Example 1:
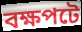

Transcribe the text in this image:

বক্ষপটে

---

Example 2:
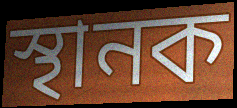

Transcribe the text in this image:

স্থানক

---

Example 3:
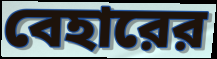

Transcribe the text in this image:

বেহারের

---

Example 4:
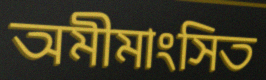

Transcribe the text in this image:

অমীমাংসিত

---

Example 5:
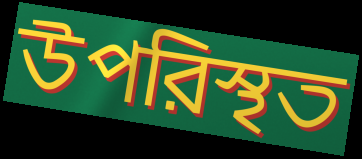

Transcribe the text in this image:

উপরিস্থত